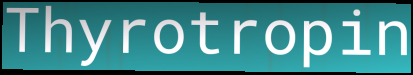
Thyrotropin